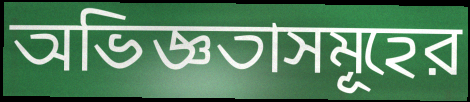
অভিজ্ঞতাসমূহের